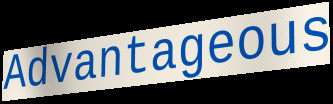
Advantageous